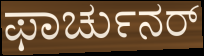
ಫಾರ್ಚುನರ್